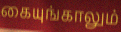
கையுங்காலும்